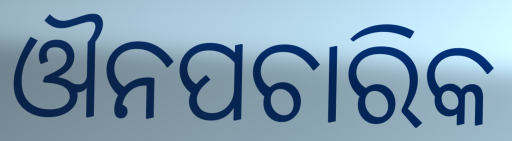
ଔନପଚାରିକ